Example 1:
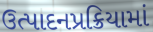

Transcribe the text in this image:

ઉત્પાદનપ્રક્રિયામાં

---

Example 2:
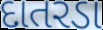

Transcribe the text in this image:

દાતરડા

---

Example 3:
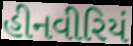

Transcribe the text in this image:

હીનવીરિયં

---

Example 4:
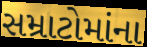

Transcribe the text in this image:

સમ્રાટોમાંના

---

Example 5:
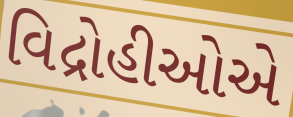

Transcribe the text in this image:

વિદ્રોહીઓએ